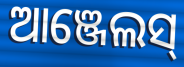
ଆଞ୍ଜେଲସ୍